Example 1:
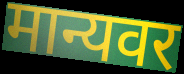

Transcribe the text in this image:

मान्यवर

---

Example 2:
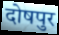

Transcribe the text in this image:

दोषपुर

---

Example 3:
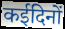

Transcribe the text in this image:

कईदिनों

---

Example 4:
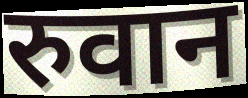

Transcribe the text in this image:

रुवान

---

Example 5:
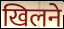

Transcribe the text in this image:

खिलने